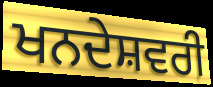
ਖਨਦੇਸ਼ਵਰੀ